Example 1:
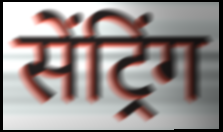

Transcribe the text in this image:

सेंट्रिंग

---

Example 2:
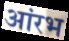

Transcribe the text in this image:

आंरभ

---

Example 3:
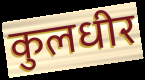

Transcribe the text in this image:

कुलधीर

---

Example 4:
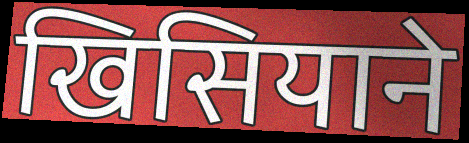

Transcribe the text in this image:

खिसियाने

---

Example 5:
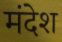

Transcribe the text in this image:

मंदेश